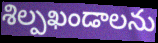
శిల్పఖండాలను